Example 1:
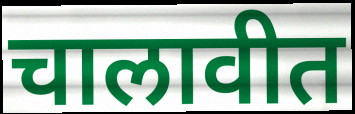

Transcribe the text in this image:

चालावीत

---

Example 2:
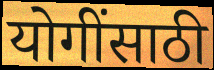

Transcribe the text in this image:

योगींसाठी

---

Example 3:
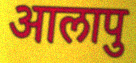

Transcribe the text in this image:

आलापु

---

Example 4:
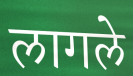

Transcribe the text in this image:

लागले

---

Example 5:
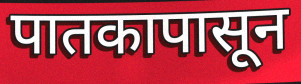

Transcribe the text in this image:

पातकापासून